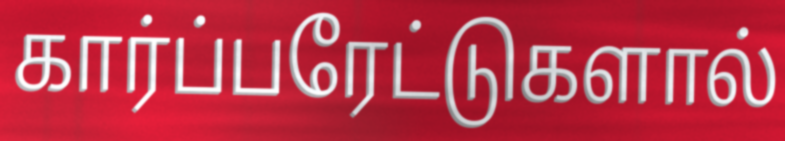
கார்ப்பரேட்டுகளால்